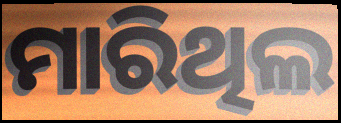
ମାରିଥିଲ